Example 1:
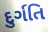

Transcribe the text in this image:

દુર્ગતિ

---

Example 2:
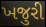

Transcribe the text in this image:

ખજુરી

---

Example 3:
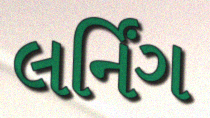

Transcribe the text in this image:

લર્નિંગ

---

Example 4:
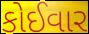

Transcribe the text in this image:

કોઈવાર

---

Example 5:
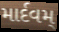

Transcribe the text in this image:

માર્દવમ્